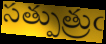
సత్పుత్రుఁ